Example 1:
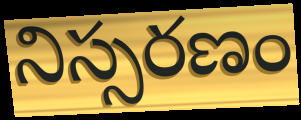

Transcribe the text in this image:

నిస్సరణం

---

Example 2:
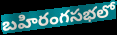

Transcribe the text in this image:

బహిరంగసభలో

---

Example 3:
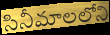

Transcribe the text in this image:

సినీమాలలోని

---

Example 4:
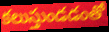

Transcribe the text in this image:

కలుస్తుండడంతో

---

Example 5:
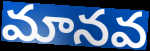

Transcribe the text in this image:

మానవ